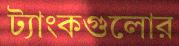
ট্যাংকগুলোর